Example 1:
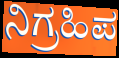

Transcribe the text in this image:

ನಿಗ್ರಹಿಪ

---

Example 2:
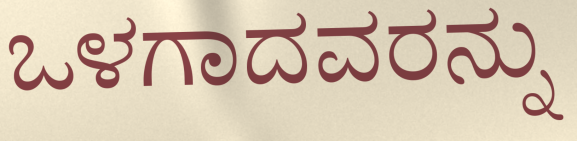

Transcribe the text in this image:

ಒಳಗಾದವರನ್ನು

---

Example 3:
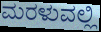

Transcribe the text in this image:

ಮರಳುವಲ್ಲಿ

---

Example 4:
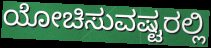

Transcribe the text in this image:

ಯೋಚಿಸುವಷ್ಟರಲ್ಲಿ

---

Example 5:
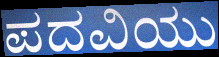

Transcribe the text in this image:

ಪದವಿಯು